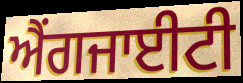
ਐਂਗਜਾਈਟੀ